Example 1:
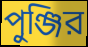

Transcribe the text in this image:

পুঞ্জির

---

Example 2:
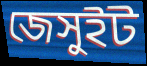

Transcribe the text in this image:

জেসুইট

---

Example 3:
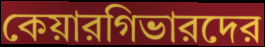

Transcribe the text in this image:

কেয়ারগিভারদের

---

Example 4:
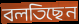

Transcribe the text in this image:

বলতিছেন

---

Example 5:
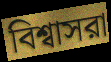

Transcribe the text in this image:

বিশ্বাসরা